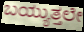
ಬಯ್ಯುತ್ತಲೇ